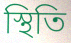
স্থিতি